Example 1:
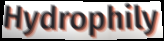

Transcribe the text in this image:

Hydrophily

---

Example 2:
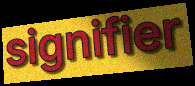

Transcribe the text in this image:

signifier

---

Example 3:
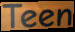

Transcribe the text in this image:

Teen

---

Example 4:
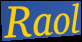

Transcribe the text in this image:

Raol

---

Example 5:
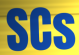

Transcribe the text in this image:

SCs